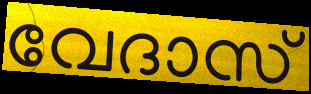
വേദാസ്